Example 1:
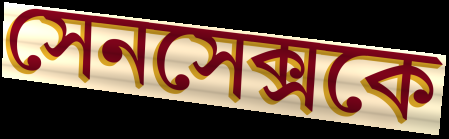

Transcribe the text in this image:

সেনসেক্সকে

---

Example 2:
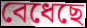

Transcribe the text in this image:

বেধেছে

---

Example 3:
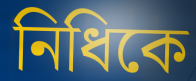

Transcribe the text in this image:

নিধিকে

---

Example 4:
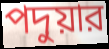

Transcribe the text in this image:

পদুয়ার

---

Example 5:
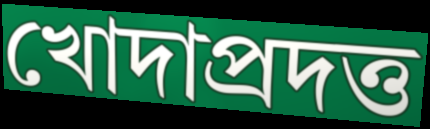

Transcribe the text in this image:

খোদাপ্রদত্ত